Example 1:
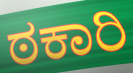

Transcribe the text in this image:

ಠಕಾರಿ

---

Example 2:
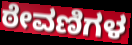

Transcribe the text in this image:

ಠೇವಣಿಗಳ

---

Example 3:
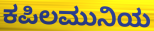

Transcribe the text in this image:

ಕಪಿಲಮುನಿಯ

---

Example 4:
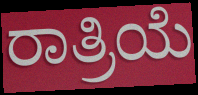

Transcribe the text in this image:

ರಾತ್ರಿಯೆ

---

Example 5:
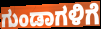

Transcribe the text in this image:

ಗುಂಡಾಗಳಿಗೆ